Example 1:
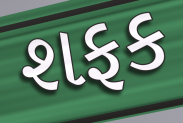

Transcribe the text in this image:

શફક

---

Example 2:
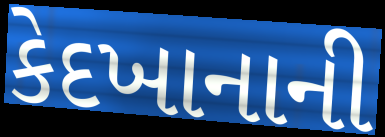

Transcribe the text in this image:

કેદખાનાની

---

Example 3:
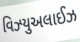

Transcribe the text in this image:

વિઝ્યુઅલાઈઝ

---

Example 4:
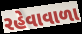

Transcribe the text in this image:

રહેવાવાળા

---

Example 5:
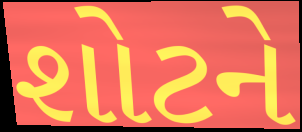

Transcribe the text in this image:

શોટને